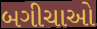
બગીચાઓ